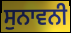
ਸੁਨਾਵਨੀ